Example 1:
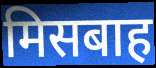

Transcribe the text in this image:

मिसबाह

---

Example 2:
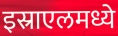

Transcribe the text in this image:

इस्राएलमध्ये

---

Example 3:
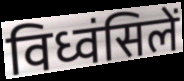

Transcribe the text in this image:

विध्वंसिलें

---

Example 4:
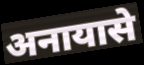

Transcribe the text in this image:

अनायासे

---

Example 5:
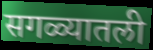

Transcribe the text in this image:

सगळ्यातली